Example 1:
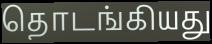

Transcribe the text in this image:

தொடங்கியது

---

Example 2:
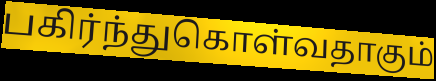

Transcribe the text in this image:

பகிர்ந்துகொள்வதாகும்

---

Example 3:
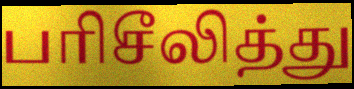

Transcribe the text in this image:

பரிசீலித்து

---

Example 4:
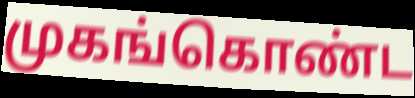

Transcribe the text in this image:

முகங்கொண்ட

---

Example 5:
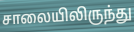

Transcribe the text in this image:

சாலையிலிருந்து